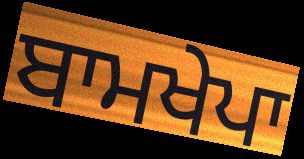
ਬਾਮਖੇਪਾ